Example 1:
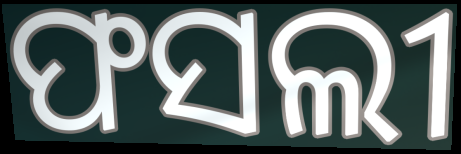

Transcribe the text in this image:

ଫସଲୀ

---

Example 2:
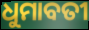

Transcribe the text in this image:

ଧୁମାବତୀ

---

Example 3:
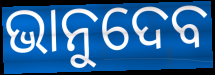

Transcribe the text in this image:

ଭାନୁଦେବ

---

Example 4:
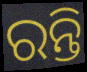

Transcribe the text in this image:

ରନ୍ତି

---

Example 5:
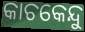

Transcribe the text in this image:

କାଚକେନ୍ଦୁ